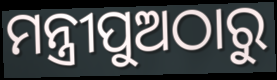
ମନ୍ତ୍ରୀପୁଅଠାରୁ